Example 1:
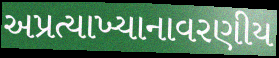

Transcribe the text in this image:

અપ્રત્યાખ્યાનાવરણીય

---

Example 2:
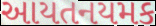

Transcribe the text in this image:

આયતનયમક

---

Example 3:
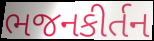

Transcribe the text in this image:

ભજનકીર્તન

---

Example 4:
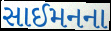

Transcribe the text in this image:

સાઈમનના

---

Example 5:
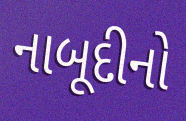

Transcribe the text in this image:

નાબૂદીનો